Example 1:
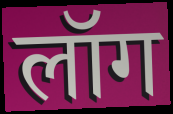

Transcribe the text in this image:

लॉग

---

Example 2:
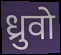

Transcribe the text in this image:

ध्रुवो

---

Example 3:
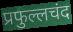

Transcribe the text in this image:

प्रफुल्लचंद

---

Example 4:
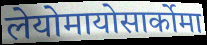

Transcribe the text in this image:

लेयोमायोसार्कोमा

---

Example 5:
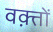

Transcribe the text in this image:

वक़्तों